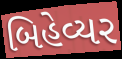
બિહેવ્યર